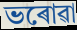
ভৰোৱা